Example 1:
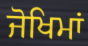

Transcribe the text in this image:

ਜੋਖਿਮਾਂ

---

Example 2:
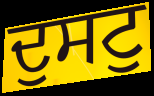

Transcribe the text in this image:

ਦੁਸਟੁ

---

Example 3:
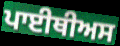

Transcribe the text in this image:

ਪਾਈਥੀਅਸ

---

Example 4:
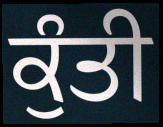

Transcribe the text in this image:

ਕੁੰਤੀ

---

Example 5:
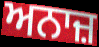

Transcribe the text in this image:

ਅਨਾਜ਼